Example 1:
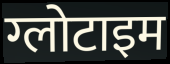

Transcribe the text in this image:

ग्लोटाइम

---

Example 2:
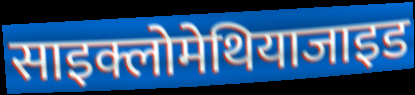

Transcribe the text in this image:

साइक्लोमेथियाजाइड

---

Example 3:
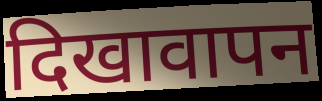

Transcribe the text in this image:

दिखावापन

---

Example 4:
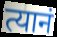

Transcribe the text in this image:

त्यानं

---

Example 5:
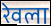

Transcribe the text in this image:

रेवला